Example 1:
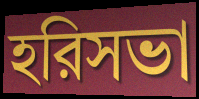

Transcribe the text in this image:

হরিসভা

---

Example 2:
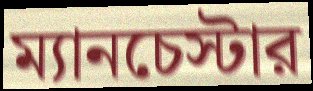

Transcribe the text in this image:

ম্যানচেস্টার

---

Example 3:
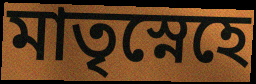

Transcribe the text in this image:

মাতৃস্নেহে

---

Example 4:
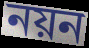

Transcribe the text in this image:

নয়ন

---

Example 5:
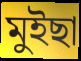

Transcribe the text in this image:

মুইছা